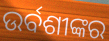
ଉର୍ବଶୀଙ୍କର